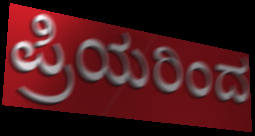
ಪ್ರಿಯರಿಂದ